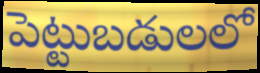
పెట్టుబడులలో